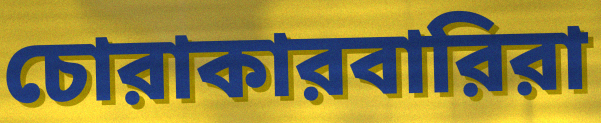
চোরাকারবারিরা